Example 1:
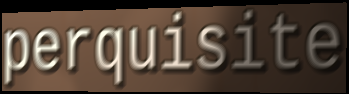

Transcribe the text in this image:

perquisite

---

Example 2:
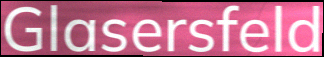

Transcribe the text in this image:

Glasersfeld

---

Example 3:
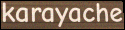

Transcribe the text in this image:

karayache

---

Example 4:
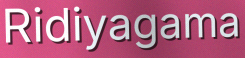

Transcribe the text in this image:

Ridiyagama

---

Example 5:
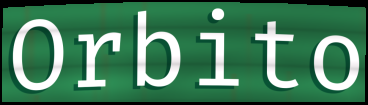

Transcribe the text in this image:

Orbito